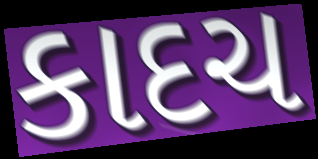
કાદચ